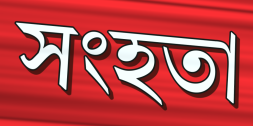
সংহতা